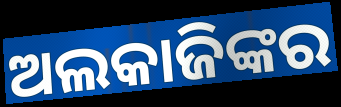
ଅଲକାଜିଙ୍କର